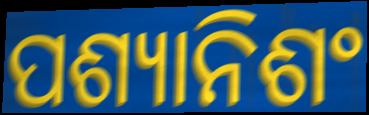
ପଶ୍ୟାନିଶଂ